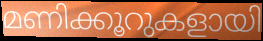
മണിക്കൂറുകളായി